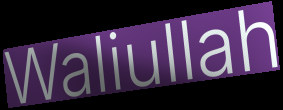
Waliullah